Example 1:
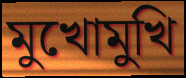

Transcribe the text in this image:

মুখোমুখি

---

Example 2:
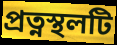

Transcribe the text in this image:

প্রত্নস্থলটি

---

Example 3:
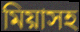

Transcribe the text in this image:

মিয়াসহ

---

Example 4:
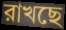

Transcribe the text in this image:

রাখছে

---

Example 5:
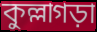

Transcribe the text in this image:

কুল্লাগড়া